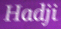
Hadji